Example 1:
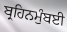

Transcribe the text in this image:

ਬ੍ਰਹਿਨਮੁੰਬਈ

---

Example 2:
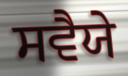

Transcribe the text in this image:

ਸਵੈਯੇ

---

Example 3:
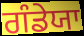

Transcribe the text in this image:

ਗੰਡੇਯਾ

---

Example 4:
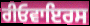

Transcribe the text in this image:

ਰੀਓਵਾਇਰਸ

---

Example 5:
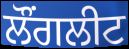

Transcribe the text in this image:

ਲੌਂਗਲੀਟ